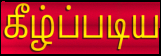
கீழ்ப்படிய